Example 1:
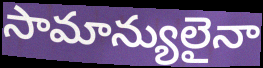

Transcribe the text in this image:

సామాన్యులైనా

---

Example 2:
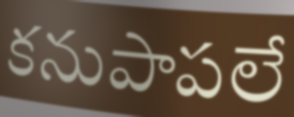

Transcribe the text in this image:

కనుపాపలే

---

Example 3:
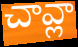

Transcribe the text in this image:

చావ్లా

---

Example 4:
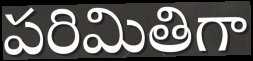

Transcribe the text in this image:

పరిమితిగా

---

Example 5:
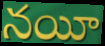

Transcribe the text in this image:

నయీ